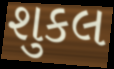
શુકલ